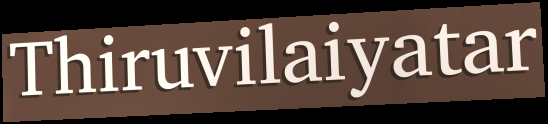
Thiruvilaiyatar